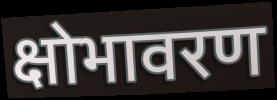
क्षोभावरण